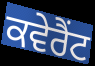
ਕਵੇਰੈਂਟ